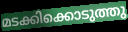
മടക്കിക്കൊടുത്തു